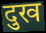
दुख